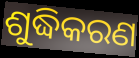
ଶୁଦ୍ଧିକରଣ